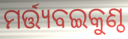
ମର୍ତ୍ତ୍ୟବଇକୁଣ୍ଠ